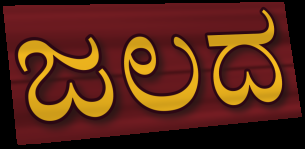
ಜಲದ